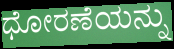
ಧೋರಣೆಯನ್ನು